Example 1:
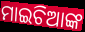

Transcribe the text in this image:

ମାଇଚିଆଙ୍କ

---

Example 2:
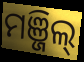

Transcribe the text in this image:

ମଞ୍ଜିଲ୍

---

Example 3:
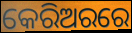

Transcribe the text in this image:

କେରିଅରରେ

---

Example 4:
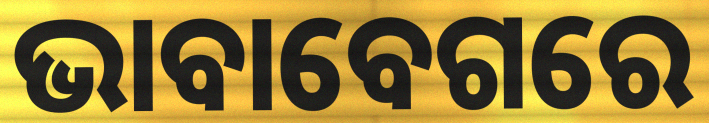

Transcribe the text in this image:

ଭାବାବେଗରେ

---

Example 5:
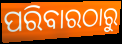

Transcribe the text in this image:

ପରିବାରଠାରୁ